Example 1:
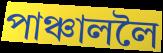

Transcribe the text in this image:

পাঞ্চাললৈ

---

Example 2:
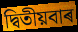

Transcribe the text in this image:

দ্বিতীয়বাৰ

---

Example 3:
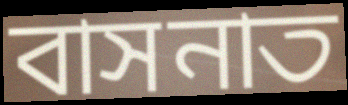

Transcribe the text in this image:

বাসনাত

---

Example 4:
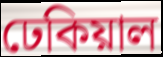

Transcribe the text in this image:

ঢেকিয়াল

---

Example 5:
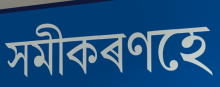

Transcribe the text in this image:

সমীকৰণহে